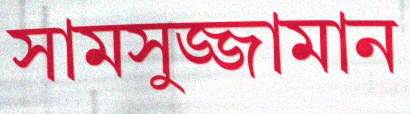
সামসুজ্জামান